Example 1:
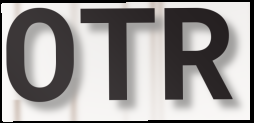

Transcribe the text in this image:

OTR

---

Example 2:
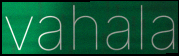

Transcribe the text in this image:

vahala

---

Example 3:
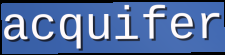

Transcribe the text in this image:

acquifer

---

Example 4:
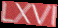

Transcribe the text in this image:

LXVI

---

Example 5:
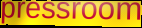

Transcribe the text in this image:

pressroom